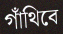
গাঁথিবে